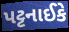
પટ્ટનાઈકે